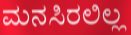
ಮನಸಿರಲಿಲ್ಲ